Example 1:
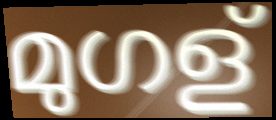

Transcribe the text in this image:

മുഗള്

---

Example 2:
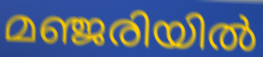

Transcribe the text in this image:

മഞ്ജരിയിൽ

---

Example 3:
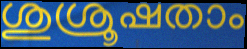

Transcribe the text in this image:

ശുശ്രൂഷതാം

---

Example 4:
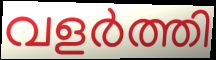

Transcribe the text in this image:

വളർത്തി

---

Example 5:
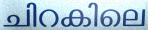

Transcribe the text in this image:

ചിറകിലെ